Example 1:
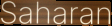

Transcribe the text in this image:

Saharan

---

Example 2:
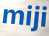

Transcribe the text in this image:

miji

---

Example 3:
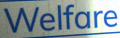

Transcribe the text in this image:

Welfare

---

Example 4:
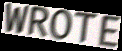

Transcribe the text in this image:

WROTE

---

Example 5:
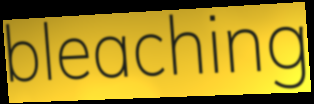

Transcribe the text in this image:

bleaching